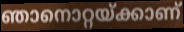
ഞാനൊറ്റയ്ക്കാണ്